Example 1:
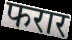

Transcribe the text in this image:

फरार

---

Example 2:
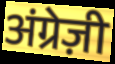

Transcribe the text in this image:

अंग्रेज़ी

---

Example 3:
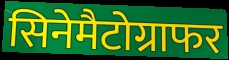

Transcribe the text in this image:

सिनेमैटोग्राफर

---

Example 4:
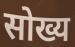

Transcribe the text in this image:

सोख्य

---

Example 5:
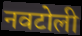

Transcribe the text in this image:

नवटोली